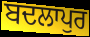
ਬਦਲਾਪੁਰ